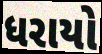
ધરાયો